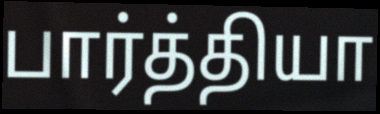
பார்த்தியா